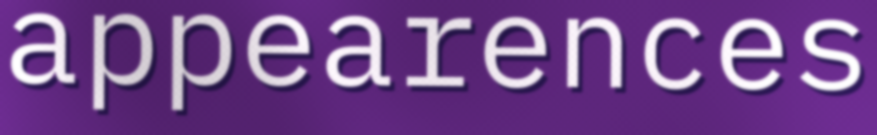
appearences